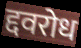
द्दवरोध